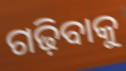
ଗଢ଼ିବାକୁ